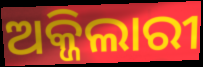
ଅକ୍ଜିଲାରୀ